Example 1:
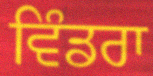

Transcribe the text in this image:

ਵਿੰਡਰਾ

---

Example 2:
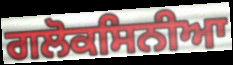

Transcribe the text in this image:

ਗਲੋਕਸਿਨੀਆ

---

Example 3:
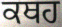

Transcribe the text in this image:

ਕਥਹ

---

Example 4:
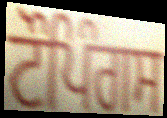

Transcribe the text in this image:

ਟੌਪਿੰਗਸ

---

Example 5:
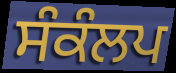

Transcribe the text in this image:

ਸੰਕੰਲਪ